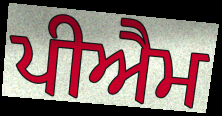
ਪੀਐਮ